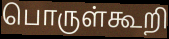
பொருள்கூறி